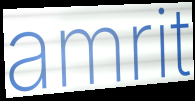
amrit